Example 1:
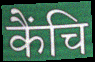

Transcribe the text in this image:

कैंचि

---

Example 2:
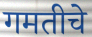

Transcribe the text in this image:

गमतीचे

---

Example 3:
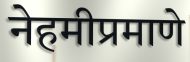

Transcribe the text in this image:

नेहमीप्रमाणे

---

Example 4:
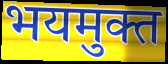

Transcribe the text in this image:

भयमुक्त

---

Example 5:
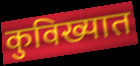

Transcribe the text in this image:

कुविख्यात